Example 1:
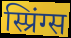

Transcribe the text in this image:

स्प्रिंग्स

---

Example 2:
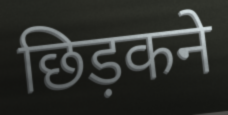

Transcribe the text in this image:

छिड़कने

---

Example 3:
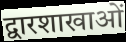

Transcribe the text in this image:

द्वारशाखाओं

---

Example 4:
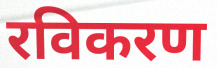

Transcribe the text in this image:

रविकरण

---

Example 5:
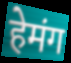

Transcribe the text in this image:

हेमंग